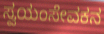
ಸ್ವಯಂಸೇವಕನ